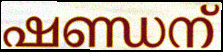
ഷണ്ഡന്